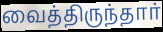
வைத்திருந்தார்